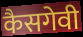
कैसगेवी